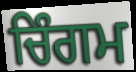
ਚਿੰਗਮ